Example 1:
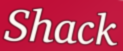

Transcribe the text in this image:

Shack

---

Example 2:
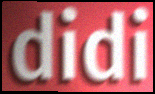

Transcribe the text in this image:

didi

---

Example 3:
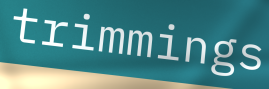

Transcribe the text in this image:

trimmings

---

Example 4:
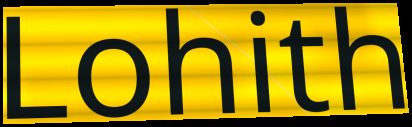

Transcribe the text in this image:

Lohith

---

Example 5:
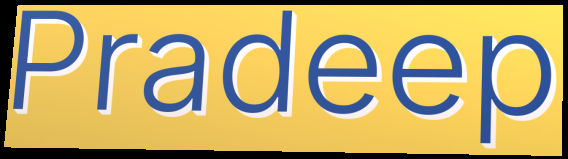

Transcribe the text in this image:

Pradeep